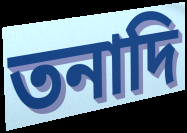
তনাদি